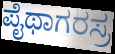
ಪೈಥಾಗರಸ್ರ